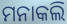
ମନାକଲି